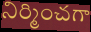
నిర్మించగా